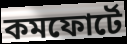
কমফোর্টে